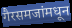
गैरसमजांमधून